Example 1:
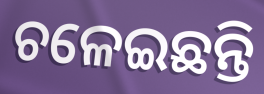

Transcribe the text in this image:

ଚଳେଇଛନ୍ତି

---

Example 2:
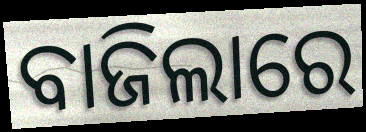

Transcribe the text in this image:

ବାଜିଲାରେ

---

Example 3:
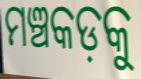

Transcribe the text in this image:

ମଞ୍ଚକଡ଼କୁ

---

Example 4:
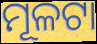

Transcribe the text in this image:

ମୂଳଟା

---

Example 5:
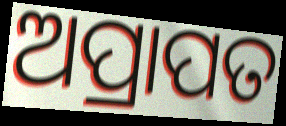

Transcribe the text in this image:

ଅପ୍ରାପତ